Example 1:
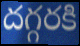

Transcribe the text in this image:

దగ్గరకి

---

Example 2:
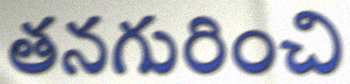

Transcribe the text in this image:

తనగురించి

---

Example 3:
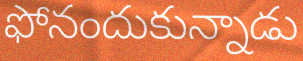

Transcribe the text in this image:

ఫోనందుకున్నాడు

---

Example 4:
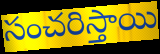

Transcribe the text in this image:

సంచరిస్తాయి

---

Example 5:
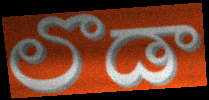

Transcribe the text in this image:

లొడా